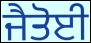
ਜੈਤੋਈ